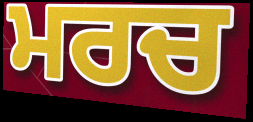
ਮਰਚ